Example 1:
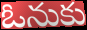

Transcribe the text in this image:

ఓనుకు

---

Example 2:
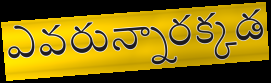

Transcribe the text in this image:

ఎవరున్నారక్కడ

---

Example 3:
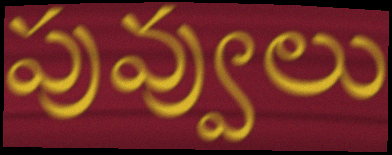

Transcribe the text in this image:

పువ్వులు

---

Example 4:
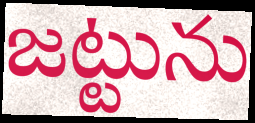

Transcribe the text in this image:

జట్టును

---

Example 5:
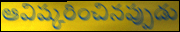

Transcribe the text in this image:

ఆవిష్కరించినప్పుడు